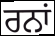
ਰਨਾਂ